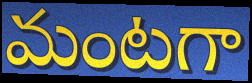
మంటగా